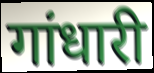
गांधारी